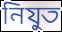
নিযুত